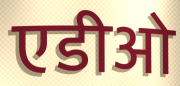
एडीओ